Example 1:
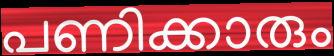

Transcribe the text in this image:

പണിക്കാരും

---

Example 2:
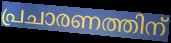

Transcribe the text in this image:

പ്രചാരണത്തിന്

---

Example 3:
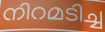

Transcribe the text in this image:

നിറമടിച്ച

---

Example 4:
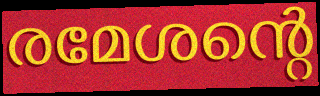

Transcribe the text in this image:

രമേശന്റെ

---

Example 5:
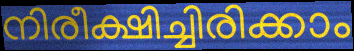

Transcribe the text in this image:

നിരീക്ഷിച്ചിരിക്കാം